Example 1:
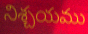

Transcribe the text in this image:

నిశ్చయము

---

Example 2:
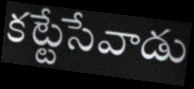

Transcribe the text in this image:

కట్టేసేవాడు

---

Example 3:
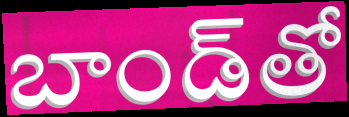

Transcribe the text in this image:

బాండ్‌తో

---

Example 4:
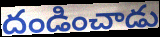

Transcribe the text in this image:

దండించాడు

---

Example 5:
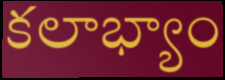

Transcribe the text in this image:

కలాభ్యాం